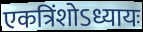
एकत्रिंशोऽध्यायः